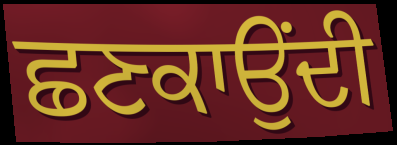
ਛਣਕਾਉਂਦੀ